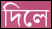
দিলে